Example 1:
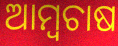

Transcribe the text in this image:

ଆମ୍ୱଚାଷ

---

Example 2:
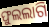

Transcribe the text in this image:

ଫୁଲଲାଗି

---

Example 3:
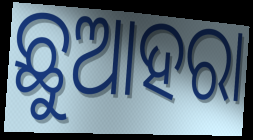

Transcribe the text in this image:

ଛୁଆହରା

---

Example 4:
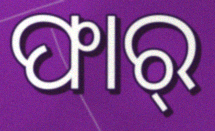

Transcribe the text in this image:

ଫାର୍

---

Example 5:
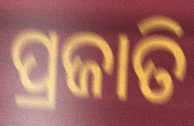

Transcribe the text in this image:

ପ୍ରଜାତି